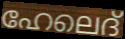
ഹേലെദ്